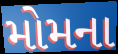
મોમના